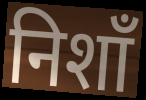
निशाँ